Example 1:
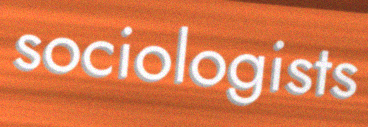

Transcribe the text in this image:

sociologists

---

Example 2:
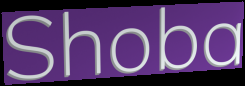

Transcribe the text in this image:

Shoba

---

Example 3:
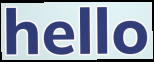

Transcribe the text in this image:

hello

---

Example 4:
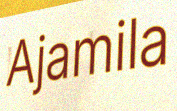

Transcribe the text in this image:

Ajamila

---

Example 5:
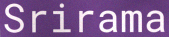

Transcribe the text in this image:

Srirama